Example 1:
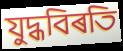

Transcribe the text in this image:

যুদ্ধবিৰতি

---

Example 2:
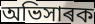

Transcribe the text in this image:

অভিসাৰক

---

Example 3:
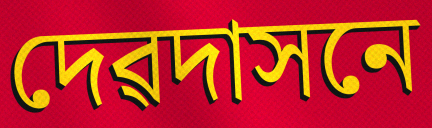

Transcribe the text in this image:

দেৱদাসনে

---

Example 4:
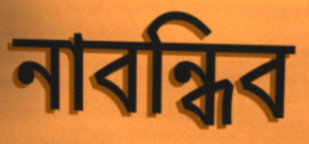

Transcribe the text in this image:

নাবন্ধিব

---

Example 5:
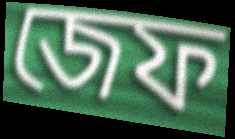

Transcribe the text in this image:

জেফ